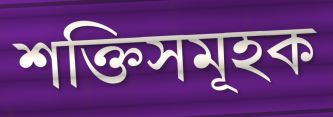
শক্তিসমূহক